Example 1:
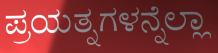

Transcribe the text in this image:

ಪ್ರಯತ್ನಗಳನ್ನೆಲ್ಲಾ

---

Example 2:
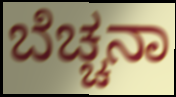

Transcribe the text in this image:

ಬೆಚ್ಚನಾ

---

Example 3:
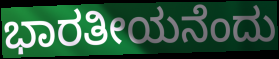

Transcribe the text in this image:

ಭಾರತೀಯನೆಂದು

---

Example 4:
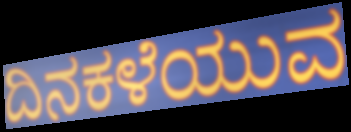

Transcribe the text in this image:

ದಿನಕಳೆಯುವ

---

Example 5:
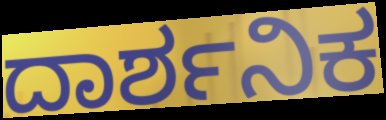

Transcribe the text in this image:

ದಾರ್ಶನಿಕ